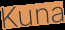
Kuna